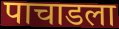
पाचाडला